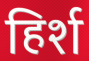
हिर्श